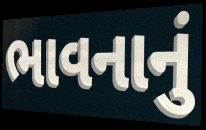
ભાવનાનું